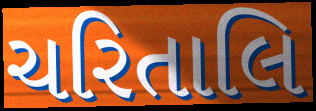
ચરિતાલિ